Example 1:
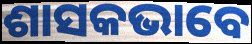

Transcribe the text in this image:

ଶାସକଭାବେ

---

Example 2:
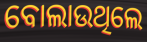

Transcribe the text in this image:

ବୋଲାଉଥିଲେ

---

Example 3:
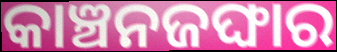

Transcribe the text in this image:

କାଞ୍ଚନଜଙ୍ଘାର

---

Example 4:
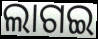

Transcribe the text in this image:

ଲାଗଇ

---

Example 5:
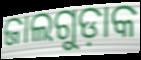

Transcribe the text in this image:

ଜାଲଗୁଡ଼ାକ